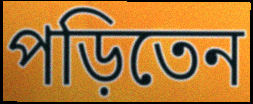
পড়িতেন